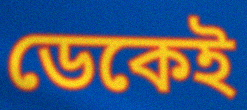
ডেকেই